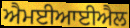
ਐਮਈਆਈਐਲ